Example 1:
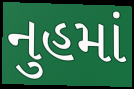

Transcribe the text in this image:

નુહમાં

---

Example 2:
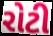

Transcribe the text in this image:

રોટી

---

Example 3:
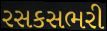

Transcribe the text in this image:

રસકસભરી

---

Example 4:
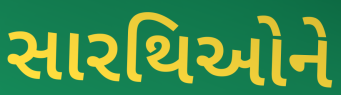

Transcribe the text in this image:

સારથિઓને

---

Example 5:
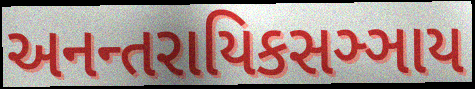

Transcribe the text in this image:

અનન્તરાયિકસઞ્ઞાય